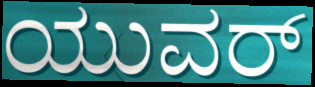
ಯುವರ್